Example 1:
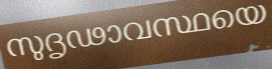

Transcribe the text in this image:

സുദൃഢാവസ്ഥയെ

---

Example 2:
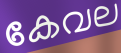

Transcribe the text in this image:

കേവല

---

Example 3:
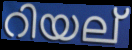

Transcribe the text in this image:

റിയല്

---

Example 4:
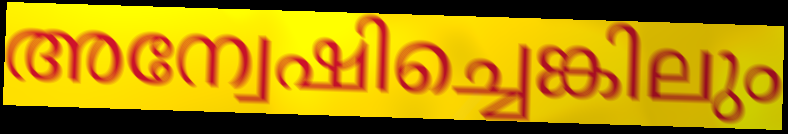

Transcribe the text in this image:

അന്വേഷിച്ചെങ്കിലും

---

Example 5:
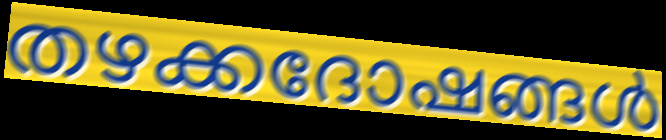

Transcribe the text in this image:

തഴക്കദോഷങ്ങൾ